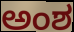
ಅಂಶ